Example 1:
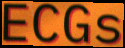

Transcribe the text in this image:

ECGs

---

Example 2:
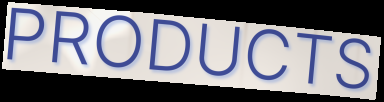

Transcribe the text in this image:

PRODUCTS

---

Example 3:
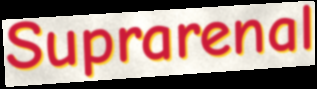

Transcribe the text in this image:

Suprarenal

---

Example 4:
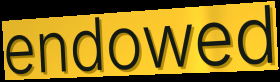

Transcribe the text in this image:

endowed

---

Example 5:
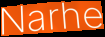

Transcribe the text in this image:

Narhe